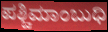
ಪಶ್ಚಿಮಾಂಬುಧಿ